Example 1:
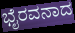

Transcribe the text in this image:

ಭೈರವನಾದ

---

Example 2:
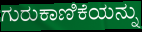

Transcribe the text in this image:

ಗುರುಕಾಣಿಕೆಯನ್ನು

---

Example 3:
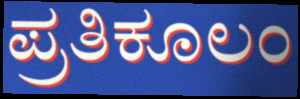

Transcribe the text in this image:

ಪ್ರತಿಕೂಲಂ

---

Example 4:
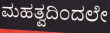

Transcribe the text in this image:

ಮಹತ್ವದಿಂದಲೇ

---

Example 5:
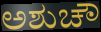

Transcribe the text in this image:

ಅಶುಚೌ